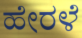
ಹೇರಳೆ